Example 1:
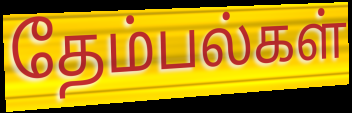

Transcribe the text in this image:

தேம்பல்கள்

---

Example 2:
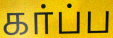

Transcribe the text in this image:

கர்ப்ப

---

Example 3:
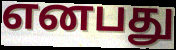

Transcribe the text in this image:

எனபது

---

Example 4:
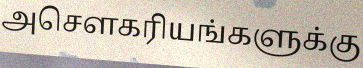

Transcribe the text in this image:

அசௌகரியங்களுக்கு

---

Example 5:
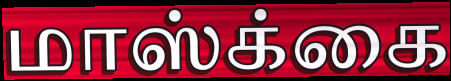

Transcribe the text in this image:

மாஸ்க்கை